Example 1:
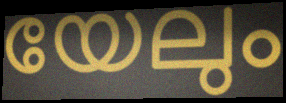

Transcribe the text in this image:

യേലും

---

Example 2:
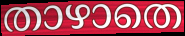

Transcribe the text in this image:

താഴാതെ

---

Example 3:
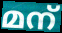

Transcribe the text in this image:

മന്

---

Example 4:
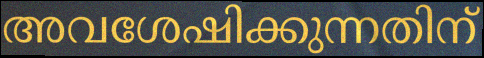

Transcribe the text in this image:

അവശേഷിക്കുന്നതിന്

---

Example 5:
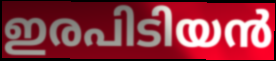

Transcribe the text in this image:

ഇരപിടിയൻ